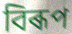
বিৰূপ